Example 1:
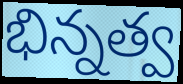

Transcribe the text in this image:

భిన్నత్వ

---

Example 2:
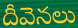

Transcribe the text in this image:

దీవెనలు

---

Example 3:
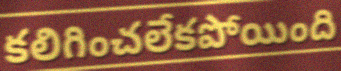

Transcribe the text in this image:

కలిగించలేకపోయింది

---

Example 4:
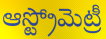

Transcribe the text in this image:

ఆస్ట్రోమెట్రీ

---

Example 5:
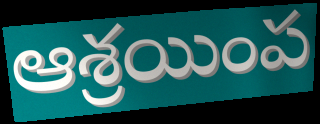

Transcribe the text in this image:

ఆశ్రయింప